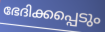
ഭേദിക്കപ്പെടും